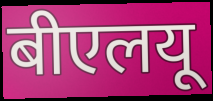
बीएलयू